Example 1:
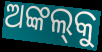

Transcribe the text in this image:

ଅଙ୍କଲ୍‌କୁ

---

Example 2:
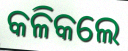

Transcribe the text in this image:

କଳିକଲେ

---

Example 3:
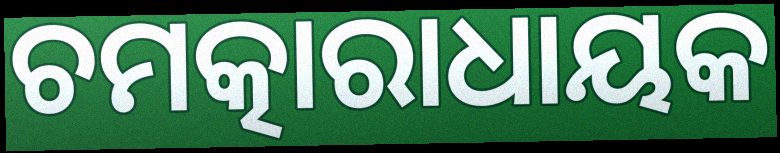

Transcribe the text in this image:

ଚମତ୍କାରାଧାୟକ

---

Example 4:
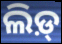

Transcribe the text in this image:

ଲିଡ଼୍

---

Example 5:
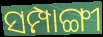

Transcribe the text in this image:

ସମ୍ପାଙ୍ଗୀ